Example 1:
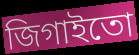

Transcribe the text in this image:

জিগাইতো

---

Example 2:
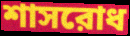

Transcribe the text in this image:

শাসরোধ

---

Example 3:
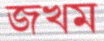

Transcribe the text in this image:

জখম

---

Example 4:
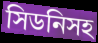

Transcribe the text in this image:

সিডনিসহ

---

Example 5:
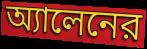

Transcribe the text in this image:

অ্যালেনের